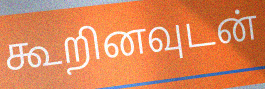
கூறினவுடன்